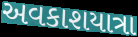
અવકાશયાત્રા